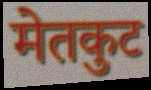
मेतकुट